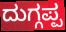
ದುಗ್ಗಪ್ಪ